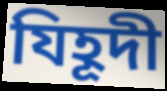
যিহূদী